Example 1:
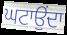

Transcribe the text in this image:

ਘਟਾਉਂਦਾ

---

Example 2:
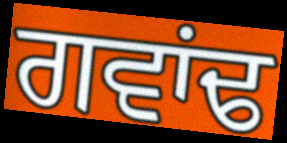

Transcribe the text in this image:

ਗਵਾਂਢ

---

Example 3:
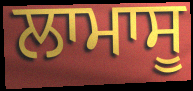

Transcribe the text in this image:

ਲਾਮਾਸੂ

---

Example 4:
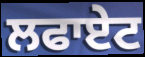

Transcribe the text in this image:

ਲਫਾਏਟ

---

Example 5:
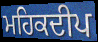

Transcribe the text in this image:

ਮਹਿਕਦੀਪ